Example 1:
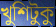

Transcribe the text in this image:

খুশিটুকু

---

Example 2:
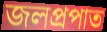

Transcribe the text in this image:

জলপ্রপাত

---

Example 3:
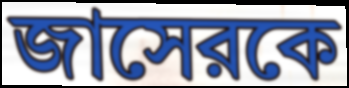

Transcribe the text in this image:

জাসেরকে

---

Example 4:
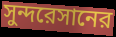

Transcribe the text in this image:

সুন্দরেসানের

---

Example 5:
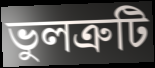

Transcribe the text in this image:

ভুলত্রুটি